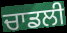
ਚਾਡਲੀ